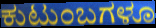
ಕುಟುಂಬಗಳೂ